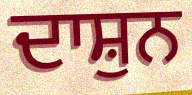
ਦਾਸ਼ੁਨ